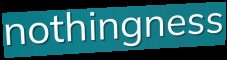
nothingness